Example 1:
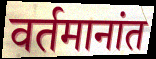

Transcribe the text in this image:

वर्तमानांत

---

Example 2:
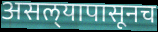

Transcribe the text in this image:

असल्यापासूनच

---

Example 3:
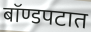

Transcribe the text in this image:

बॉण्डपटात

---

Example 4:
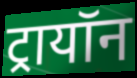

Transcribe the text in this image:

ट्रायॉन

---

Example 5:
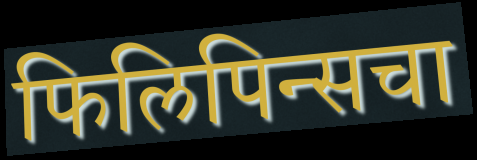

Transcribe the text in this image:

फिलिपिन्सचा